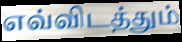
எவ்விடத்தும்